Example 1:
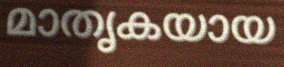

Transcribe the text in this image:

മാതൃകയായ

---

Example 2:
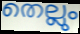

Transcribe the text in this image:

തെല്ലും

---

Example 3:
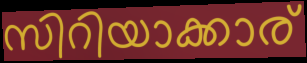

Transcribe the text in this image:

സിറിയാക്കാര്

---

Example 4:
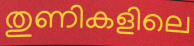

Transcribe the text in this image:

തുണികളിലെ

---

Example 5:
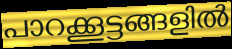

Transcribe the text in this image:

പാറക്കൂട്ടങ്ങളിൽ